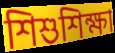
শিশুশিক্ষা